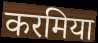
करमिया